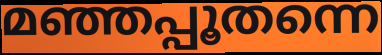
മഞ്ഞപ്പൂതന്നെ